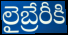
లైబ్రేరీకి